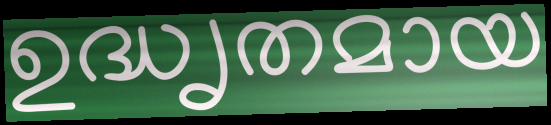
ഉദ്ധൃതമായ